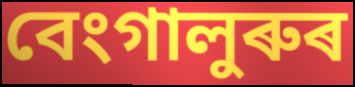
বেংগালুৰুৰ